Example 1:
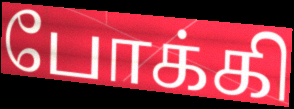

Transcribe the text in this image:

போக்கி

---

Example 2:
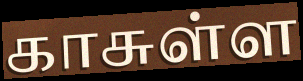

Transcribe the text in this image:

காசுள்ள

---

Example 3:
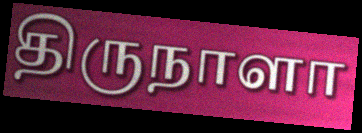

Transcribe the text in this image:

திருநாளா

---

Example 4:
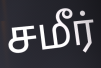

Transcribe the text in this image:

சமீர்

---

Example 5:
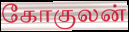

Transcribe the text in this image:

கோகுலன்